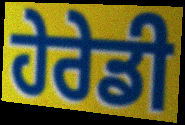
ਹੇਰੇਡੀ